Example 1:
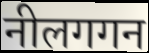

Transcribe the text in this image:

नीलगगन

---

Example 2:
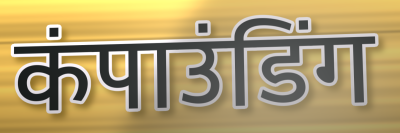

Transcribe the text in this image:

कंपाउंडिंग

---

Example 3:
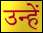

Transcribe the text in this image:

उन्हें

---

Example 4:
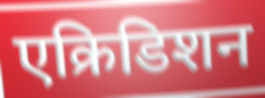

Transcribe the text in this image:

एक्रिडिशन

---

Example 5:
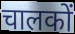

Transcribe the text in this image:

चालकों